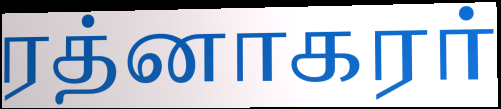
ரத்னாகரர்